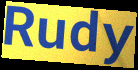
Rudy